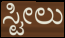
ಸ್ಟೀಲು